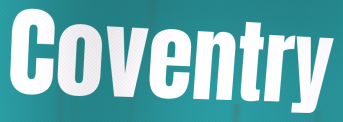
Coventry